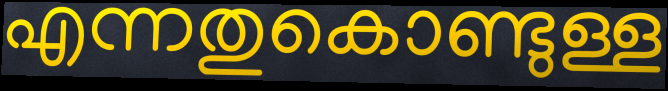
എന്നതുകൊണ്ടുള്ള